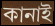
কানাই